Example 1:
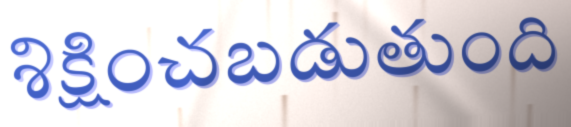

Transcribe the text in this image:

శిక్షించబడుతుంది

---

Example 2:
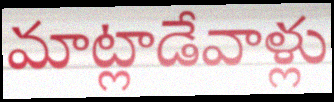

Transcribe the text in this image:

మాట్లాడేవాళ్లు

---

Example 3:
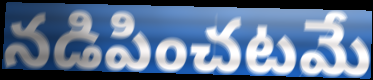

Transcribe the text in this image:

నడిపించటమే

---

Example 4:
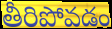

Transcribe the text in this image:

తీరిపోవడం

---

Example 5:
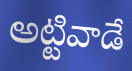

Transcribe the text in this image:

అట్టివాడే